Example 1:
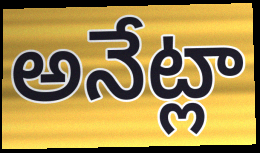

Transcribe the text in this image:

అనేట్లా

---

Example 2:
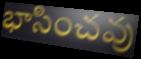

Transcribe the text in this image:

భాసించవు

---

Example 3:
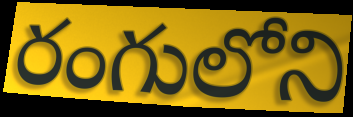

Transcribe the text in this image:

రంగులోని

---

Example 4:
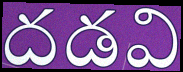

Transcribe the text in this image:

దడవి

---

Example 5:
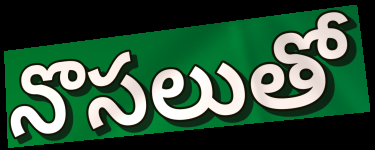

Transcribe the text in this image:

నొసలుతో